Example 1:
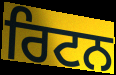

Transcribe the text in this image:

ਰਿਟਨ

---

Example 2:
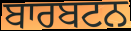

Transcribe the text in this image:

ਬਾਰਬਟਨ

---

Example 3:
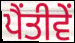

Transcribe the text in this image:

ਪੈਂਤੀਵੇਂ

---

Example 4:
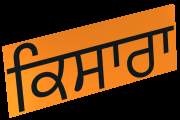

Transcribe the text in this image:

ਕਿਸਾਰਾ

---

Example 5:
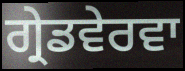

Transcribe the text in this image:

ਗ੍ਰੇਡਵੇਰਵਾ